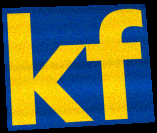
kf